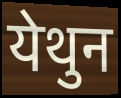
येथुन